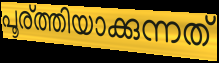
പൂര്ത്തിയാക്കുന്നത്